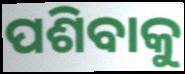
ପଶିବାକୁ